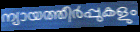
ന്യായത്തീർപ്പുകളും